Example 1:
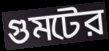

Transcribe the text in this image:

গুমটের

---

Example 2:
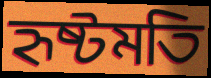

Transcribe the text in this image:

হৃষ্টমতি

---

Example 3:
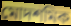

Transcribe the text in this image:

মোদশমিক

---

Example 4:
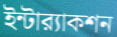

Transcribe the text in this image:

ইন্টার‍্যাকশন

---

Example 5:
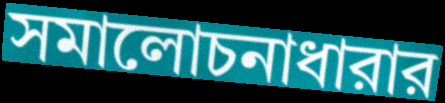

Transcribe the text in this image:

সমালোচনাধারার